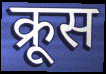
क्रूस